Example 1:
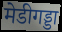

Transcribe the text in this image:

मेडीगड्डा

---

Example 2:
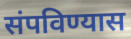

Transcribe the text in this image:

संपविण्यास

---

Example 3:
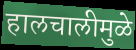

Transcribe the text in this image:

हालचालीमुळे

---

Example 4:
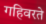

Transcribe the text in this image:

गहिवरते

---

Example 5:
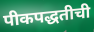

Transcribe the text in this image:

पीकपद्धतीची